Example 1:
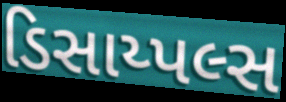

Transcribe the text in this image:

ડિસાય્પલ્સ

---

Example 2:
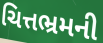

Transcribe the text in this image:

ચિત્તભ્રમની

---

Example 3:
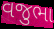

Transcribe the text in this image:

વજુભા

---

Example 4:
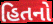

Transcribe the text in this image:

હિતનો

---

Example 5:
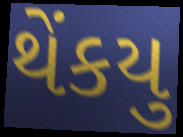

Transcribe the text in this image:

થેંકયુ